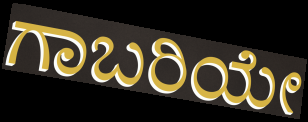
ಗಾಬರಿಯೇ